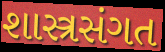
શાસ્ત્રસંગત